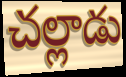
చల్లాడు